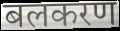
बलकरण